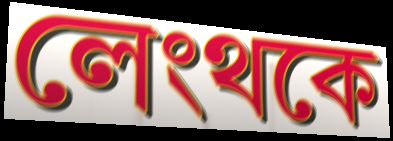
লেংথকে